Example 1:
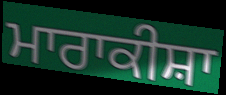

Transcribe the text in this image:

ਮਾਰਾਕੀਸ਼ਾ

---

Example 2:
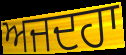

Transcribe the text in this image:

ਅਜਦਹਾ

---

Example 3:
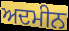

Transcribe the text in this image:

ਅਦਮੀਨ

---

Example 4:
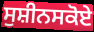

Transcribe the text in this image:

ਸੁਸ਼ੀਨਸਕੋਏ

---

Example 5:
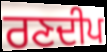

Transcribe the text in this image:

ਰਣਦੀਪ